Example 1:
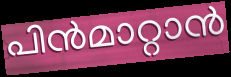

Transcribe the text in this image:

പിൻമാറ്റാൻ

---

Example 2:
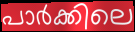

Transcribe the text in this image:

പാർക്കിലെ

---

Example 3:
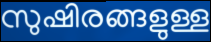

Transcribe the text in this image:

സുഷിരങ്ങളുള്ള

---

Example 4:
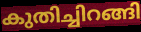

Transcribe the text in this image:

കുതിച്ചിറങ്ങി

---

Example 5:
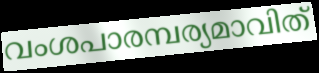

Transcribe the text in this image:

വംശപാരമ്പര്യമാവിത്